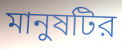
মানুষটির